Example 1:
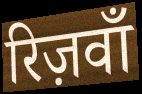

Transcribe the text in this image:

रिज़वाँ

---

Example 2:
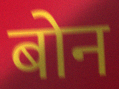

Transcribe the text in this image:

बोन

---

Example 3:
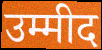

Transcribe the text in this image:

उम्मीद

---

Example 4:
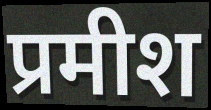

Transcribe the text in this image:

प्रमीश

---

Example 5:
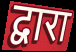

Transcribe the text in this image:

द्वारा